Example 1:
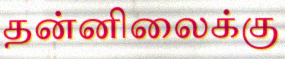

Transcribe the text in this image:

தன்னிலைக்கு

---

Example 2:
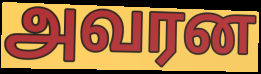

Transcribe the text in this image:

அவரன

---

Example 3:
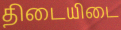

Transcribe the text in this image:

திடையிடை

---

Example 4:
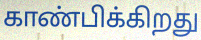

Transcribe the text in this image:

காண்பிக்கிறது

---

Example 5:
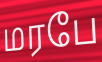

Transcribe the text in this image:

மரபே